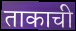
ताकाची